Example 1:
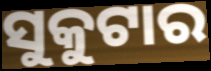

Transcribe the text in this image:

ସୁକୁଟାର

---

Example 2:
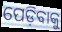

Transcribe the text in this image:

ପେଡ଼ିବାକୁ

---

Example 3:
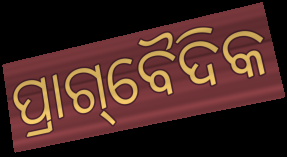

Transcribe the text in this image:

ପ୍ରାଗ୍‌ବୈଦିକ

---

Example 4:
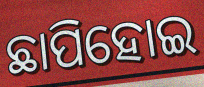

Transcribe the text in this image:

ଛାପିହୋଇ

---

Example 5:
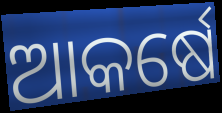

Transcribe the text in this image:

ଆକର୍ଷେ